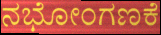
ನಭೋಂಗಣಕೆ